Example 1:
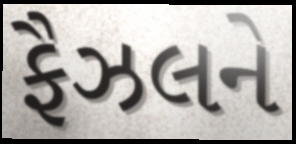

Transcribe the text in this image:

ફૈઝલને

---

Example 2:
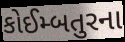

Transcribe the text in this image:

કોઈમ્બતુરના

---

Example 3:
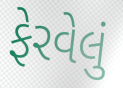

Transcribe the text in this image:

ફેરવેલું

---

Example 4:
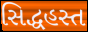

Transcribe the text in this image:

સિદ્ધહસ્ત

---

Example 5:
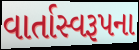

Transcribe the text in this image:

વાર્તાસ્વરૂપના